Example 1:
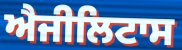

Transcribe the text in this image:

ਐਜੀਲਿਟਾਸ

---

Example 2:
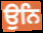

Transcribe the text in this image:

ਉਨਿ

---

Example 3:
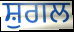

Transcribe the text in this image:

ਸ਼ੁਗਲ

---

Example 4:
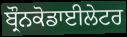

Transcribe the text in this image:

ਬ੍ਰੌਨਕੋਡਾਈਲੇਟਰ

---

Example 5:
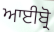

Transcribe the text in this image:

ਆਈਬ੍ਰੋ